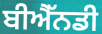
ਬੀਐੱਨਡੀ